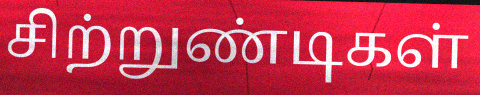
சிற்றுண்டிகள்